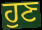
ਹੁਣ